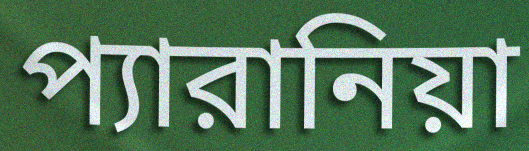
প্যারানিয়া